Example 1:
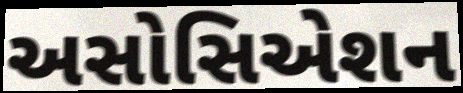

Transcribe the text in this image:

અસોસિએશન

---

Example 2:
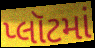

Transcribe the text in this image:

પ્લૉટમાં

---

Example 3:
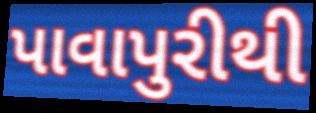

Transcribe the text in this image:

પાવાપુરીથી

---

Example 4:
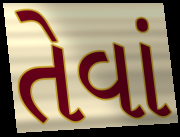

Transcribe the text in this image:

તેવાં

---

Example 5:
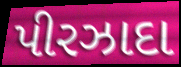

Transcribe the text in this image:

પીરઝાદા